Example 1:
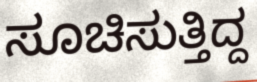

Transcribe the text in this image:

ಸೂಚಿಸುತ್ತಿದ್ದ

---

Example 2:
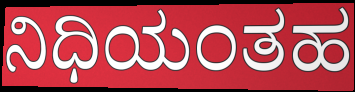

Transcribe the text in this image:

ನಿಧಿಯಂತಹ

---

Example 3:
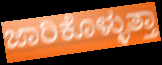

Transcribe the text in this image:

ಜಾರಿಕೊಳ್ಳುತ್ತಾ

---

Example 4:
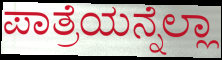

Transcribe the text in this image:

ಪಾತ್ರೆಯನ್ನೆಲ್ಲಾ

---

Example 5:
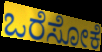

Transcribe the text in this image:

ಒರೆಸೋಕೆ